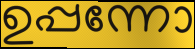
ഉപ്പന്നോ